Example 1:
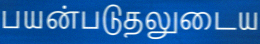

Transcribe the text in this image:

பயன்படுதலுடைய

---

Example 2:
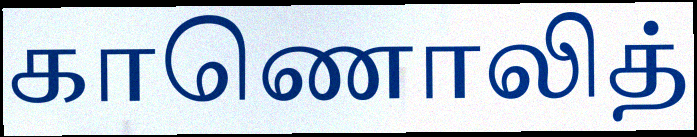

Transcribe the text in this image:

காணொலித்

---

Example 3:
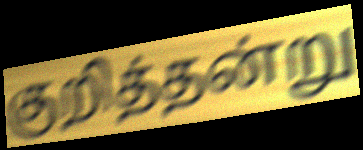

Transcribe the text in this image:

குறித்தன்று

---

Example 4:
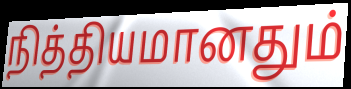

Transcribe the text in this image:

நித்தியமானதும்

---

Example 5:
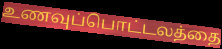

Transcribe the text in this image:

உணவுப்பொட்டலத்தை